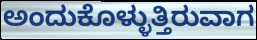
ಅಂದುಕೊಳ್ಳುತ್ತಿರುವಾಗ